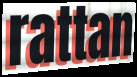
rattan